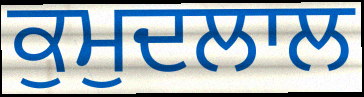
ਕੁਮੁਦਲਾਲ